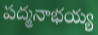
పద్మనాభయ్య